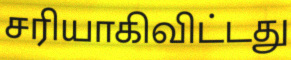
சரியாகிவிட்டது